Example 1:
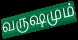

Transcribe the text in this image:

வருஷமும்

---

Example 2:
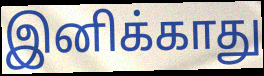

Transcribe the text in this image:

இனிக்காது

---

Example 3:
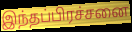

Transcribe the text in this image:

இந்தப்பிரச்சனை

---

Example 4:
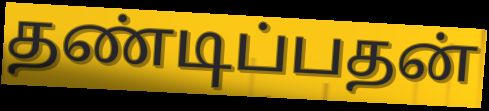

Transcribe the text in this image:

தண்டிப்பதன்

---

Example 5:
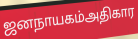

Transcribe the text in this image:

ஜனநாயகம்அதிகார